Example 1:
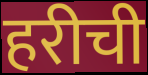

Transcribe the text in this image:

हरीची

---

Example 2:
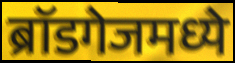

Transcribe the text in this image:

ब्रॉडगेजमध्ये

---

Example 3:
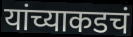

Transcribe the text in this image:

यांच्याकडचं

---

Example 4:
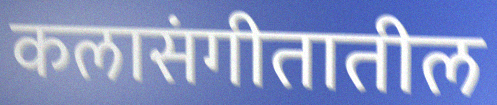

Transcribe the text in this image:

कलासंगीतातील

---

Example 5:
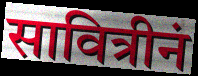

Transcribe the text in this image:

सावित्रीनं